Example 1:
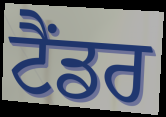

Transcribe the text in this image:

ਟੈਂਡਰ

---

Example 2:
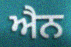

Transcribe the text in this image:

ਐਨ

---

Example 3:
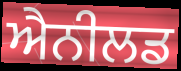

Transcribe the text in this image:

ਐਨੀਲਡ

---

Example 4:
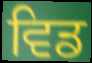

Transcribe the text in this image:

ਵਿਡ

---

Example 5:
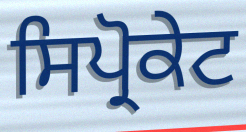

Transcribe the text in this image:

ਸਿਪ੍ਰੋਕੇਟ